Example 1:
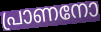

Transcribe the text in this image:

പ്രാണനോ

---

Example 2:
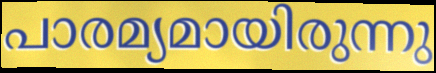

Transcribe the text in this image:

പാരമ്യമായിരുന്നു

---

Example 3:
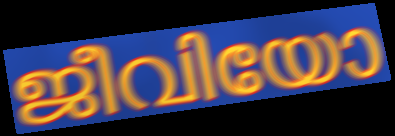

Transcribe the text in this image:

ജീവിയോ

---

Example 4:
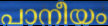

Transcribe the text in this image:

പാനീയം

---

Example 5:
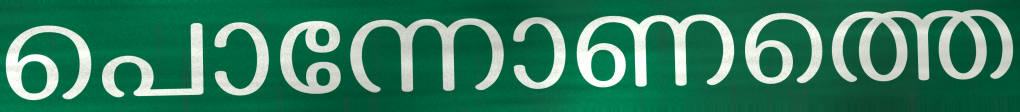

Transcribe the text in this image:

പൊന്നോണത്തെ